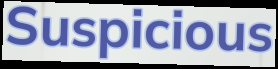
Suspicious